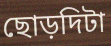
ছোড়দিটা